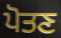
ਪੋਤਣ